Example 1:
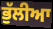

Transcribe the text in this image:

ਭੁੱਲੀਆ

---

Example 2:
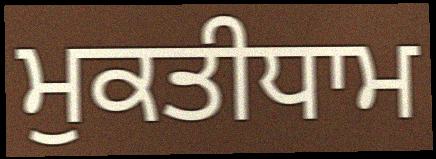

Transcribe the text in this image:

ਮੁਕਤੀਧਾਮ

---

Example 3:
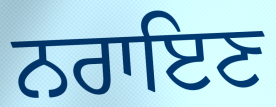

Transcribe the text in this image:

ਨਰਾਇਣ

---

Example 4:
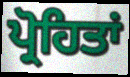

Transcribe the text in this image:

ਪ੍ਰੋਹਿਤਾਂ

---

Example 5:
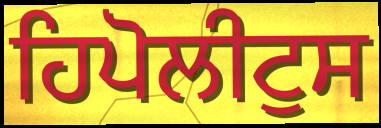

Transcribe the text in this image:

ਹਿਪੋਲੀਟੁਸ